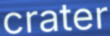
crater